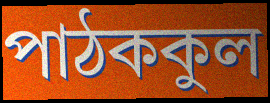
পাঠককুল